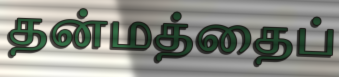
தன்மத்தைப்